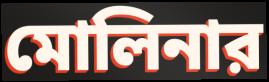
মোলিনার